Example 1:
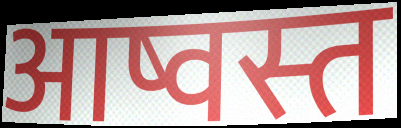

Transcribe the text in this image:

आष्वस्त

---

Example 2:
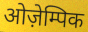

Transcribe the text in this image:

ओज़ेम्पिक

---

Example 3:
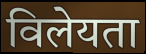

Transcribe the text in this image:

विलेयता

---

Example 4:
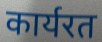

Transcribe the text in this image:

कार्यरत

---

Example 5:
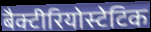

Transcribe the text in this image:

बैक्टीरियोस्टेटिक